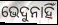
ଭେଦୁନାହିଁ